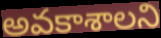
అవకాశాలని